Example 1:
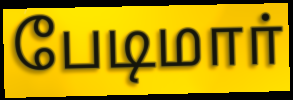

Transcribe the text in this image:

பேடிமார்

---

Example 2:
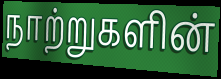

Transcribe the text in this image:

நாற்றுகளின்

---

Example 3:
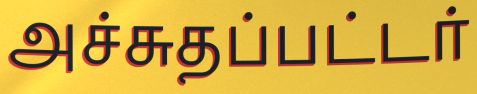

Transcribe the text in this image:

அச்சுதப்பட்டர்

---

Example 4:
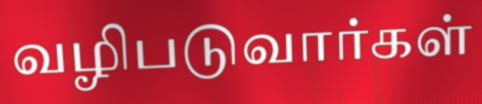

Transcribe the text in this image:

வழிபடுவார்கள்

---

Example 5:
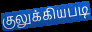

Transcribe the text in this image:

குலுக்கியபடி